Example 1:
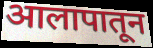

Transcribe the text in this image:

आलापातून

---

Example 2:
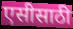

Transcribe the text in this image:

एसीसाठी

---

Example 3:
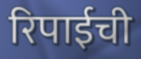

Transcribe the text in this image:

रिपाईची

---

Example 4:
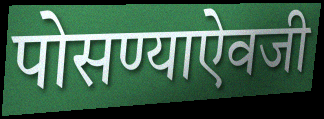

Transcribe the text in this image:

पोसण्याऐवजी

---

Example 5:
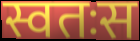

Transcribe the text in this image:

स्वतःस